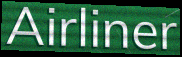
Airliner